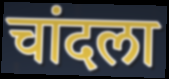
चांदला